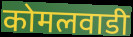
कोमलवाडी